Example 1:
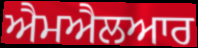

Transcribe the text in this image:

ਐਮਐਲਆਰ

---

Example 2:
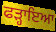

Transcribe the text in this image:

ਫੜ੍ਹਾਇਆ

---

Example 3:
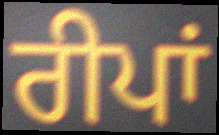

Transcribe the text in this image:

ਰੀਪਾਂ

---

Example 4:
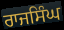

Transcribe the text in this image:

ਰਾਜਸਿੰਘ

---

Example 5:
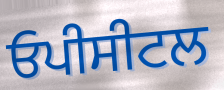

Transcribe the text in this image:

ਓਪੀਸੀਟਲ